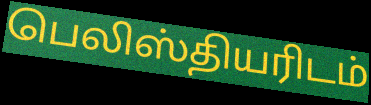
பெலிஸ்தியரிடம்